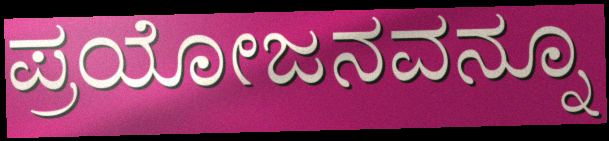
ಪ್ರಯೋಜನವನ್ನೂ